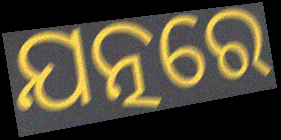
ଯତ୍ନରେ